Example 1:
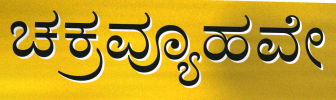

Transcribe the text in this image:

ಚಕ್ರವ್ಯೂಹವೇ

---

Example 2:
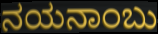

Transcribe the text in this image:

ನಯನಾಂಬು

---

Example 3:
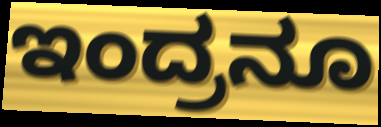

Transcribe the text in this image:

ಇಂದ್ರನೂ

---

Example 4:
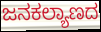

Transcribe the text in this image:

ಜನಕಲ್ಯಾಣದ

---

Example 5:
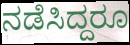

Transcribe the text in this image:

ನಡೆಸಿದ್ದರೂ